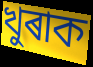
খুৰাক